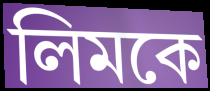
লিমকে